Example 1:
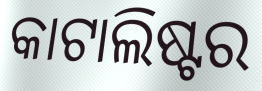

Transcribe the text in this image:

କାଟାଲିଷ୍ଟର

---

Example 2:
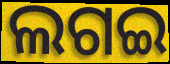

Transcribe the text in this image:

ଲଗଇ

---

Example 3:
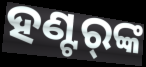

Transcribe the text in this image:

ହଣ୍ଟର୍‌ଙ୍କ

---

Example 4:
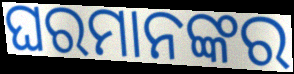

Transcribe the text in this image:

ଘରମାନଙ୍କର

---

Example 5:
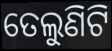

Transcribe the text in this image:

ତେଲୁଣିଟି